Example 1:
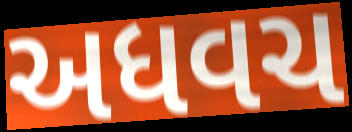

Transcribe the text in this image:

અધવચ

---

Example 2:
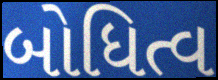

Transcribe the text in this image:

બોધિત્વ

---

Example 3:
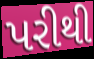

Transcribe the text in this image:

પરીથી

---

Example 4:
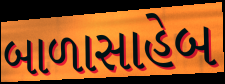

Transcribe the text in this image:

બાળાસાહેબ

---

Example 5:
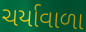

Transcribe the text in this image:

ચર્યાવાળા